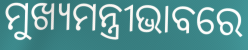
ମୁଖ୍ୟମନ୍ତ୍ରୀଭାବରେ